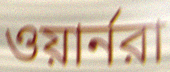
ওয়ার্নরা